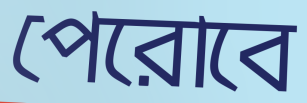
পেরোবে